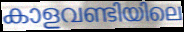
കാളവണ്ടിയിലെ